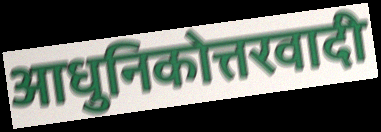
आधुनिकोत्तरवादी